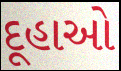
દૂહાઓ